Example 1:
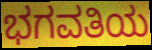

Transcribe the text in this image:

ಭಗವತಿಯ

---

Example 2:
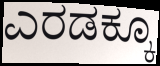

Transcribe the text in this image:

ಎರಡಕ್ಕೂ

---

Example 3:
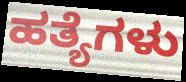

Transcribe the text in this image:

ಹತ್ಯೆಗಳು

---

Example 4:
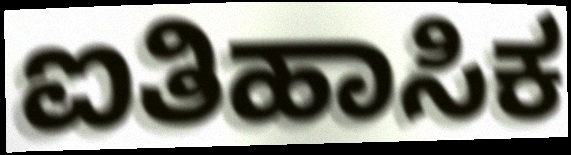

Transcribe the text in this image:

ಐತಿಹಾಸಿಕ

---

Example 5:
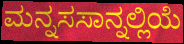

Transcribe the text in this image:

ಮನ್ನಸಸಾನ್ನಲ್ಲಿಯೆ